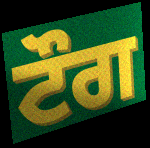
ਟੌਗ